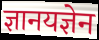
ज्ञानयज्ञेन